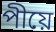
পীয়ে